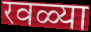
रवळ्या